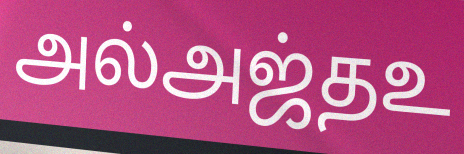
அல்அஜ்தஉ